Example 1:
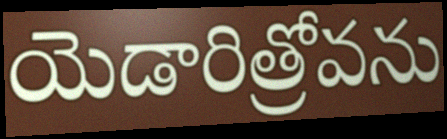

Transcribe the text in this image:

యెడారిత్రోవను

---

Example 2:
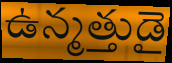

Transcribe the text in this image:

ఉన్మత్తుడై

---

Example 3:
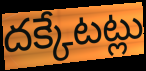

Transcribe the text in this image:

దక్కేటట్లు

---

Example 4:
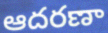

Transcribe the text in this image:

ఆదరణా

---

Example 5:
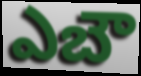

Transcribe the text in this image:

ఎబౌ